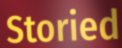
Storied